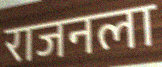
राजनला